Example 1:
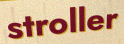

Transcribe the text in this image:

stroller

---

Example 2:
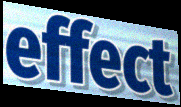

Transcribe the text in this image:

effect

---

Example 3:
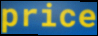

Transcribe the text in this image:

price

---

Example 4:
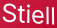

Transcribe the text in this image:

Stiell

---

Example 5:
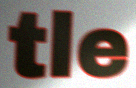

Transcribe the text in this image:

tle